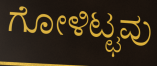
ಗೋಳಿಟ್ಟವು